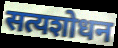
सत्यशोधन